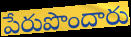
పేరుపొందారు